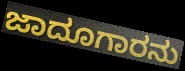
ಜಾದೂಗಾರನು